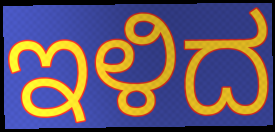
ಇಳಿದ